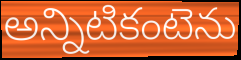
అన్నిటికంటెను